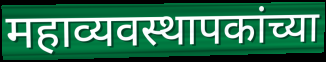
महाव्यवस्थापकांच्या